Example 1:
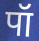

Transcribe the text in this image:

पॉ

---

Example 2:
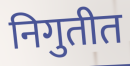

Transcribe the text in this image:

निगुतीत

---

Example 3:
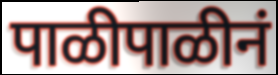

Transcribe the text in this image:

पाळीपाळीनं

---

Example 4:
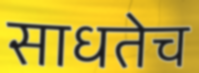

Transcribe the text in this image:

साधतेच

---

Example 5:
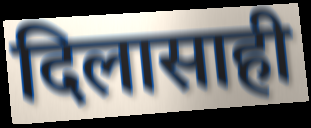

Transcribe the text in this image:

दिलासाही